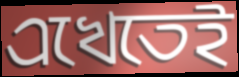
এখেতেই